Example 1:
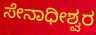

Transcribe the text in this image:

ಸೇನಾಧೀಶ್ವರ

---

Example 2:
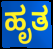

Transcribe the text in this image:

ಹೃತ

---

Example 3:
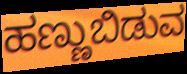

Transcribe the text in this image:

ಹಣ್ಣುಬಿಡುವ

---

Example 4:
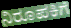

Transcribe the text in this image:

ನಿರೂಪಕಿಗೆ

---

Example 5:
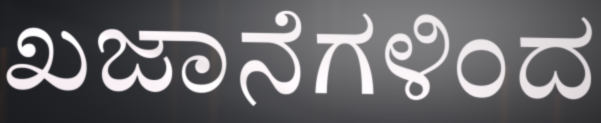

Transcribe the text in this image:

ಖಜಾನೆಗಳಿಂದ